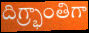
దిగ్ర్భాంతిగా